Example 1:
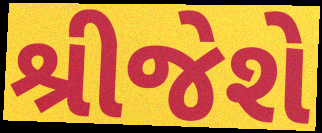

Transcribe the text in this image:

શ્રીજેશે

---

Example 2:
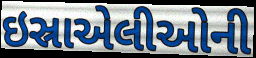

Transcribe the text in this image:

ઇસ્રાએલીઓની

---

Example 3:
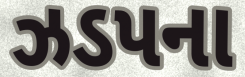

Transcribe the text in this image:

ઝડપના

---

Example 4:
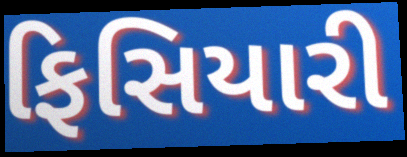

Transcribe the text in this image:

ફિસિયારી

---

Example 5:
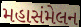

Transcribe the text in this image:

મહાસંમેલન